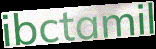
ibctamil